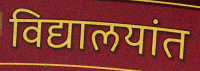
विद्यालयांत